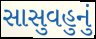
સાસુવહુનું